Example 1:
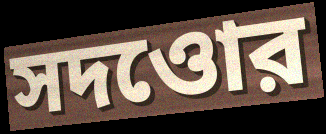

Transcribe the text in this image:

সদওোর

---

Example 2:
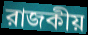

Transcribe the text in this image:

রাজকীয়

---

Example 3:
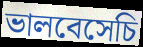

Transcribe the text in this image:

ভালবেসেচি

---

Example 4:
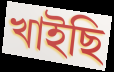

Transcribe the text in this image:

খাইছি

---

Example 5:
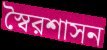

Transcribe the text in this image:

স্বৈরশাসন